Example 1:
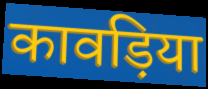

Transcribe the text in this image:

कावड़िया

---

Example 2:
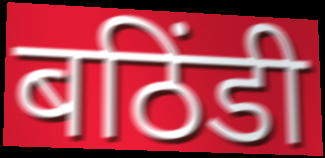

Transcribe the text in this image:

बठिंडी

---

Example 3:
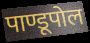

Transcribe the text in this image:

पाण्डूपोल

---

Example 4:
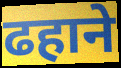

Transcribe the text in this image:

ढहाने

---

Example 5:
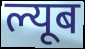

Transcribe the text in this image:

ल्यूब